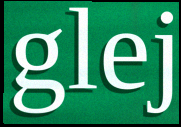
glej